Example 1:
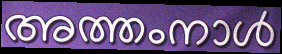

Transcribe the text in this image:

അത്തംനാൾ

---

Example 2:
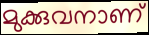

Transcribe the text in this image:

മുക്കുവനാണ്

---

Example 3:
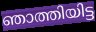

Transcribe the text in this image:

ഞാത്തിയിട്ട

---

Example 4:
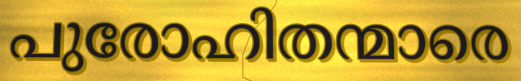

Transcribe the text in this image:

പുരോഹിതന്മാരെ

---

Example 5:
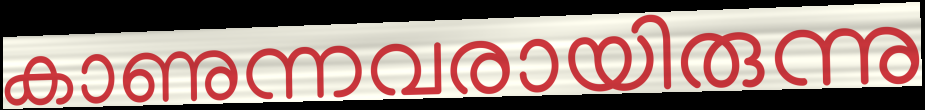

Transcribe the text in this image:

കാണുന്നവരായിരുന്നു